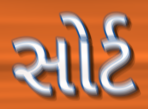
સોર્ટ